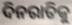
ଦିନରାତିକୁ